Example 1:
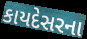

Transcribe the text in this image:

કાયદેસરના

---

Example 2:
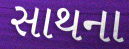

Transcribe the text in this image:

સાથના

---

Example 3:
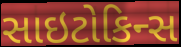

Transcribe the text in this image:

સાઇટોકિન્સ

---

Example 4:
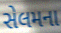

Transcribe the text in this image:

સેલમના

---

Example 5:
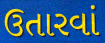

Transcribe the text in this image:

ઉતારવાં